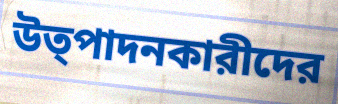
উত্পাদনকারীদের